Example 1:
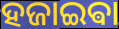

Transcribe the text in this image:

ହଜାଇଵା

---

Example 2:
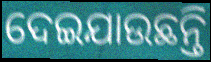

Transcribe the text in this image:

ଦେଇଯାଉଛନ୍ତି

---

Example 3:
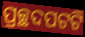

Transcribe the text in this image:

ପ୍ରଚ୍ଛଦପଟଟି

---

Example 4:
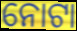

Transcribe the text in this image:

ନୋଟା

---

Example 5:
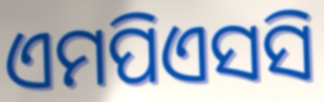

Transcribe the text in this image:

ଏମପିଏସସି